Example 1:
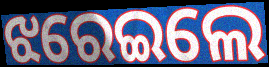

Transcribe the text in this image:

ଝରେଇଲେ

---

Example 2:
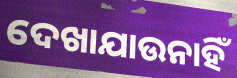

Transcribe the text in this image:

ଦେଖାଯାଉନାହିଁ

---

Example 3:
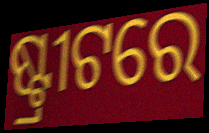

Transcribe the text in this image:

ଷ୍ଟ୍ରୀଟରେ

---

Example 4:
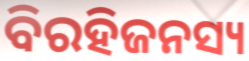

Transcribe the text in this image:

ବିରହିଜନସ୍ୟ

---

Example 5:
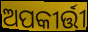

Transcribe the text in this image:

ଅପକୀର୍ତ୍ତୀ